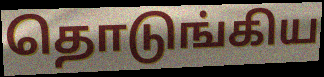
தொடுங்கிய